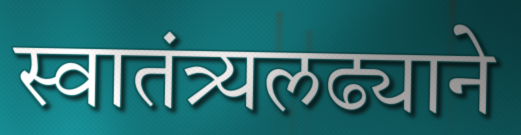
स्वातंत्र्यलढ्याने